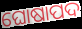
ଘୋଷାପଦ